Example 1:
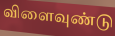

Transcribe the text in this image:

விளைவுண்டு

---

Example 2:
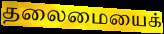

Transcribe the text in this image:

தலைமையைக்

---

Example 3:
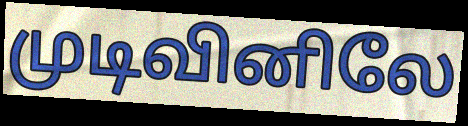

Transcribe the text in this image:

முடிவினிலே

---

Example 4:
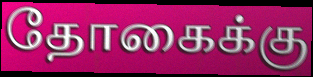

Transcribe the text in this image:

தோகைக்கு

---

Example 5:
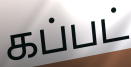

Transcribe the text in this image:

கப்பட்